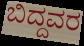
ಬಿದ್ದವರ